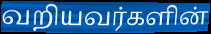
வறியவர்களின்